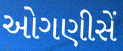
ઓગણીસેં